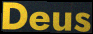
Deus